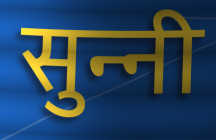
सुन्नी